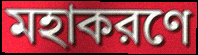
মহাকরণে